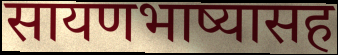
सायणभाष्यासह